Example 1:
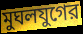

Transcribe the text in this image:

মুঘলযুগের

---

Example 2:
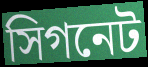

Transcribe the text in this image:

সিগনেট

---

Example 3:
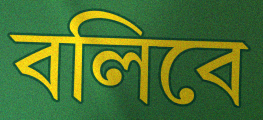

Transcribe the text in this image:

বলিবে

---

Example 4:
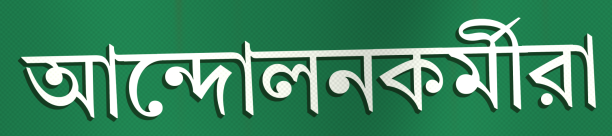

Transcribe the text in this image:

আন্দোলনকর্মীরা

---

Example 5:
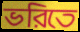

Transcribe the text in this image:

ভরিতে